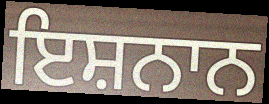
ਇਸ਼ਨਾਨ